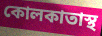
কোলকাতাস্থ